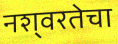
नश्वरतेचा